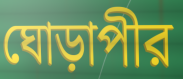
ঘোড়াপীর